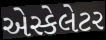
એસ્કેલેટર